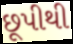
છૂપીથી